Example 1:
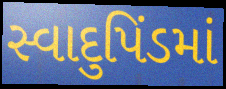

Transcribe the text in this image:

સ્વાદુપિંડમાં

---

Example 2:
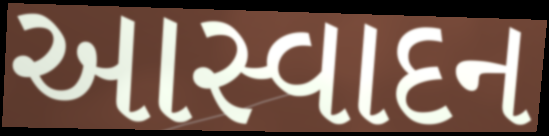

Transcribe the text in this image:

આસ્વાદન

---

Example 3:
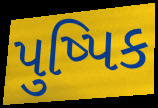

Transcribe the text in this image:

પુષ્પિક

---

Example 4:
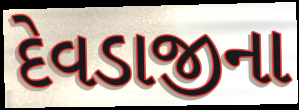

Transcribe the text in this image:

દેવડાજીના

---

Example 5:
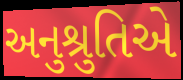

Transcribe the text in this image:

અનુશ્રુતિએ